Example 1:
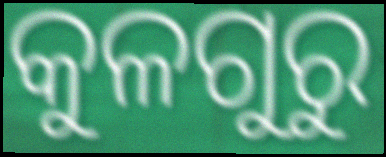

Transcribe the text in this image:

କୁଳଗୁରୁ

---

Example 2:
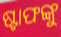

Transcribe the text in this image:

ଷ୍ଟାଫଙ୍କୁ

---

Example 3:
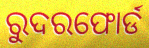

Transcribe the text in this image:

ରୁଦରଫୋର୍ଡ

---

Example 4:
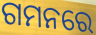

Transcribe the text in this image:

ଗମନରେ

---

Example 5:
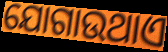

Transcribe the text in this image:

ଯୋଗାଉଥାଏ